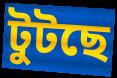
টুটছে